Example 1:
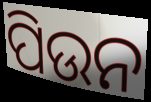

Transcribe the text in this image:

ପିଉନ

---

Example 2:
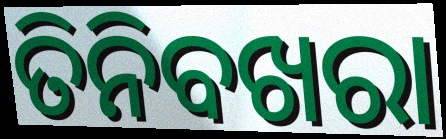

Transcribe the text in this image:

ତିନିବଖରା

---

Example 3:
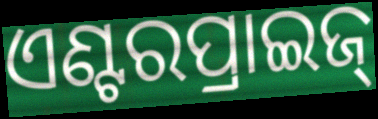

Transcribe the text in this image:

ଏଣ୍ଟରପ୍ରାଇଜ୍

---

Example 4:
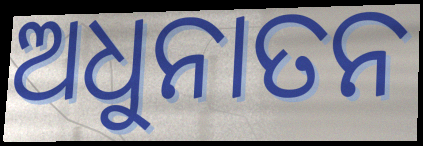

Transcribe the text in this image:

ଅଧୁନାତନ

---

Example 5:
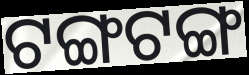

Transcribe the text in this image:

ଟଙ୍ଗଟଙ୍ଗ